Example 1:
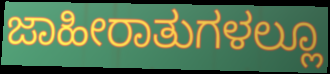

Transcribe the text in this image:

ಜಾಹೀರಾತುಗಳಲ್ಲೂ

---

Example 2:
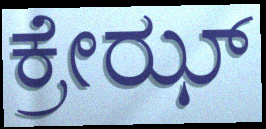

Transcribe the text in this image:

ಕ್ರೇಝ್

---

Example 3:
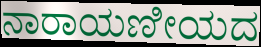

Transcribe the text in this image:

ನಾರಾಯಣೀಯದ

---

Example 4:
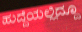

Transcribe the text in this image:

ಹುದ್ದೆಯಲ್ಲಿದ್ದೂ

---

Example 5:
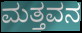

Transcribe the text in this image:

ಮತ್ತವನ